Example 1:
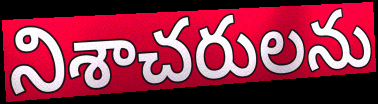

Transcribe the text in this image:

నిశాచరులను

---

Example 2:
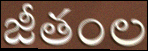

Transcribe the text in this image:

జీతంల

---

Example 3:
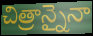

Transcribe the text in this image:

చిత్రాన్నైనా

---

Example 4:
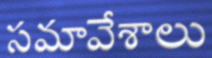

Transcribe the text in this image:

సమావేశాలు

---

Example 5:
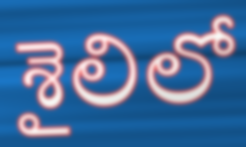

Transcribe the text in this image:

శైలిలో